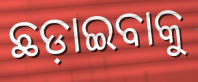
ଛଡ଼ାଇବାକୁ